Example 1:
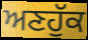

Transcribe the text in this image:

ਅਣਹੁੱਕ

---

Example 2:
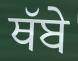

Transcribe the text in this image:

ਥੱਬੇ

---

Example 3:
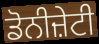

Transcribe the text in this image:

ਡੋਨੀਜ਼ੇਟੀ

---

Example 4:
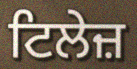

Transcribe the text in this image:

ਟਿਲੇਜ਼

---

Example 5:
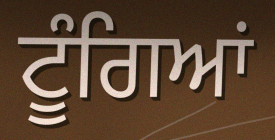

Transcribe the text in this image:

ਟੂੰਗਿਆਂ